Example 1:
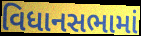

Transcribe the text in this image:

વિધાનસભામાં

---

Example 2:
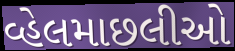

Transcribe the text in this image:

વ્હેલમાછલીઓ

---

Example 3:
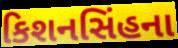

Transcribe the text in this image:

કિશનસિંહના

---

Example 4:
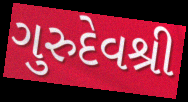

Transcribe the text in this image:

ગુરુદેવશ્રી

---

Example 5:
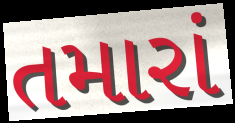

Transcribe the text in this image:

તમારાં